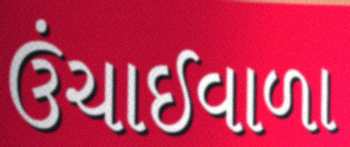
ઉંચાઈવાળા